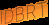
IDBRT